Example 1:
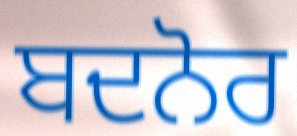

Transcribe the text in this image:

ਬਦਨੋਰ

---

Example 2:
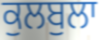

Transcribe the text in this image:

ਕੁਲਬੁਲਾ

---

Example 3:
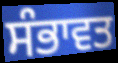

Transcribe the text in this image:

ਸੰਭਾਵਤ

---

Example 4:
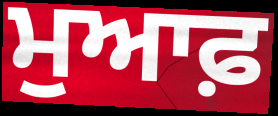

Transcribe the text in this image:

ਮੁਆਫ਼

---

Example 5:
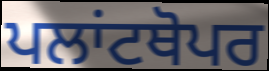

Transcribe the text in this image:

ਪਲਾਂਟਥੋਪਰ